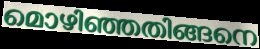
മൊഴിഞ്ഞതിങ്ങനെ